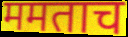
ममताच